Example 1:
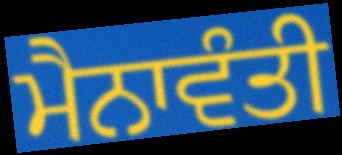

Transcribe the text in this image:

ਮੈਨਾਵੰਤੀ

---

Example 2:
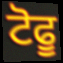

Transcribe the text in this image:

ਟੋਫੂ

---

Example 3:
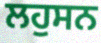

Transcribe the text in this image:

ਲਹੁਸਨ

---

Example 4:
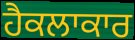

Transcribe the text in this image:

ਹੈਕਲਾਕਾਰ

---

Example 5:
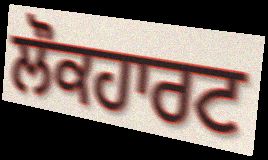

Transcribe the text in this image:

ਲੌਕਹਾਰਟ